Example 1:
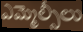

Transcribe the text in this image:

ఎమ్మెల్సీలు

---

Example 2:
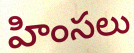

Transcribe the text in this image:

హింసలు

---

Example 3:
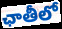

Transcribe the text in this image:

ఛాతీలో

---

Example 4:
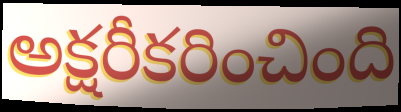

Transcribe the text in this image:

అక్షరీకరించింది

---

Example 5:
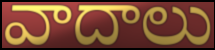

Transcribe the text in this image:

వాదాలు